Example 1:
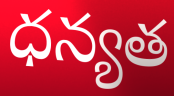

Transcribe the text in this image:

ధన్యత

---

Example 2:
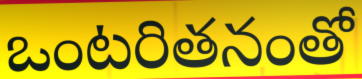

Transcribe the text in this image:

ఒంటరితనంతో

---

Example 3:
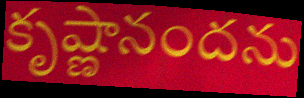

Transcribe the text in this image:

కృష్ణానందను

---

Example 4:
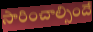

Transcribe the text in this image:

సారించాల్సిందే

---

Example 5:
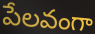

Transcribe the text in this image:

పేలవంగా